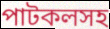
পাটকলসহ